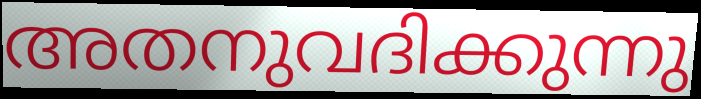
അതനുവദിക്കുന്നു